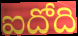
ఐదోది